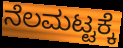
ನೆಲಮಟ್ಟಕ್ಕೆ